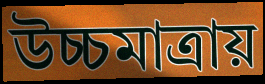
উচ্চমাত্রায়